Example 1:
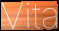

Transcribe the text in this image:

Vita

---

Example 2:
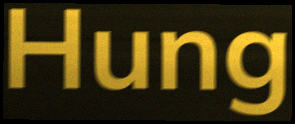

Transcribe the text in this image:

Hung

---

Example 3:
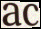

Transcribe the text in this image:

ac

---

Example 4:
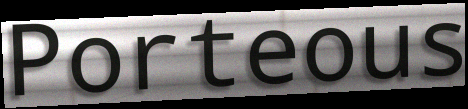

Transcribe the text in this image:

Porteous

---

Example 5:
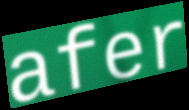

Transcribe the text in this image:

afer